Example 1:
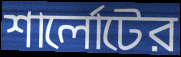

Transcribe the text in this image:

শার্লোটের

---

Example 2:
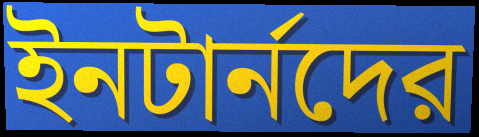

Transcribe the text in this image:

ইনটার্নদের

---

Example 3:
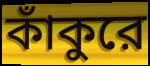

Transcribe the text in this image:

কাঁকুরে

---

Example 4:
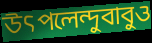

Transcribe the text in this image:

উৎপলেন্দুবাবুও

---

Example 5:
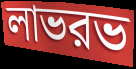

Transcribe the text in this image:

লাভরভ